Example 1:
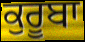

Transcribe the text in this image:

ਕੁਰੂਬਾ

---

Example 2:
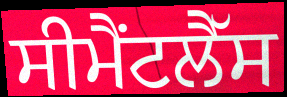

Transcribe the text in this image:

ਸੀਮੈਂਟਲੈੱਸ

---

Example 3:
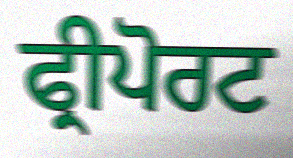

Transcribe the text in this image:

ਫ੍ਰੀਪੋਰਟ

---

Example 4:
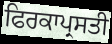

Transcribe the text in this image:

ਫਿਰਕਾਪ੍ਰਸਤੀ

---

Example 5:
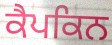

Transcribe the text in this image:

ਕੈਪਕਿਨ